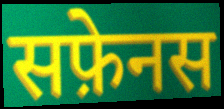
सफ़ेनस